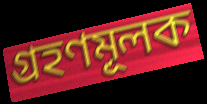
গ্রহণমূলক